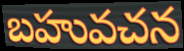
బహువచన